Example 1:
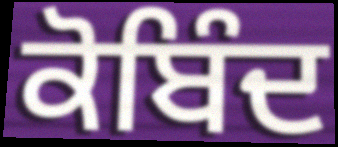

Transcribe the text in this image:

ਕੋਬਿੰਦ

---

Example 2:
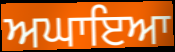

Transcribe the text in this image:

ਅਘਾਇਆ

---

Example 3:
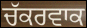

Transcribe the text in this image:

ਚੱਕਰਵਾਕ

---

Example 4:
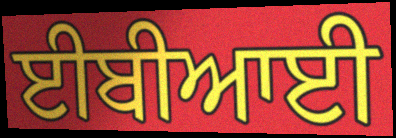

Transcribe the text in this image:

ਈਬੀਆਈ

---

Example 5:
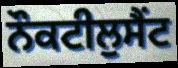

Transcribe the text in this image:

ਨੌਕਟੀਲੁਸੈਂਟ